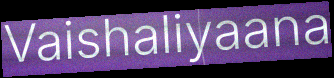
Vaishaliyaana